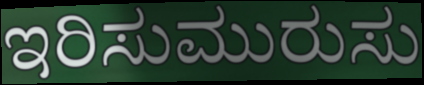
ಇರಿಸುಮುರುಸು